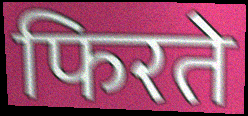
फिरते